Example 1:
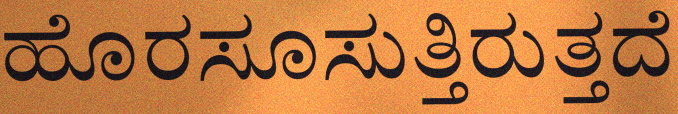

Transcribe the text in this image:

ಹೊರಸೂಸುತ್ತಿರುತ್ತದೆ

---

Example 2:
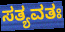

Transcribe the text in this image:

ಸತ್ಯವತಃ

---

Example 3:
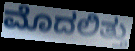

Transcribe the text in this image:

ಮೊದಲಿತ್ತು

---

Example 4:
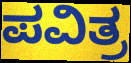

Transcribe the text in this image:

ಪವಿತ್ರ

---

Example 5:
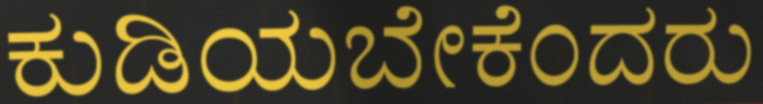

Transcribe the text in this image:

ಕುಡಿಯಬೇಕೆಂದರು